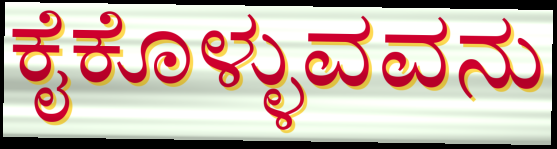
ಕೈಕೊಳ್ಳುವವನು